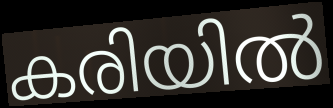
കരിയിൽ